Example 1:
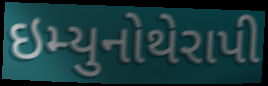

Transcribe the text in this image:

ઇમ્યુનોથેરાપી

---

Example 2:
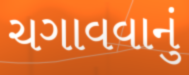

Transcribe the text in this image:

ચગાવવાનું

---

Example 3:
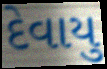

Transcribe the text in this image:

દેવાયુ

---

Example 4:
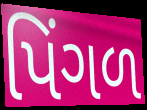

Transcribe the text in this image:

પિંગળ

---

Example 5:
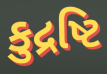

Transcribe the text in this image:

કુદ્રષ્ટિ